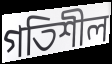
গতিশীল